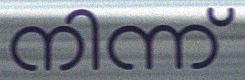
നിന്ന്